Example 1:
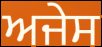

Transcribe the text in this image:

ਅਜੇਸ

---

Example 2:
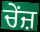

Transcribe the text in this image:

ਚੇਂਜ਼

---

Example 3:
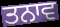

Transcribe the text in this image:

ਤਨਾਵ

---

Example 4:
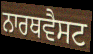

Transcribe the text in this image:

ਨਾਰਥਵੈਸਟ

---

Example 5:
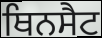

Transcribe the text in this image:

ਥਿਨਸੈਟ